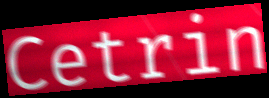
Cetrin